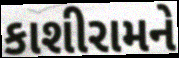
કાશીરામને